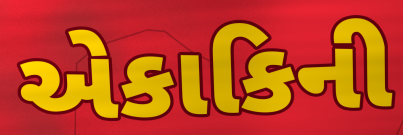
એકાકિની